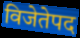
विजेतेपद